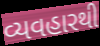
વ્યવહારથી